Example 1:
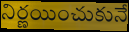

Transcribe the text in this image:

నిర్ణయించుకునే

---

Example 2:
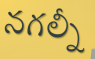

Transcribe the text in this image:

నగల్నీ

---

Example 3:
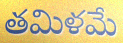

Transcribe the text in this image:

తమిళమే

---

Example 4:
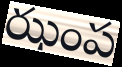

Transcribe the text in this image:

ఝంప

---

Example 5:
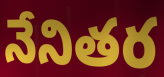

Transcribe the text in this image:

నేనితర